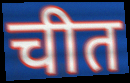
चीत